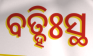
ବତ୍ହିଃସ୍ଥ